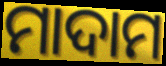
ମାଦାମ